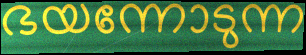
ഭയന്നോടുന്ന